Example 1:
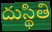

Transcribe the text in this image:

దుస్థితి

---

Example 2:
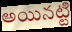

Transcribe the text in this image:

అయినట్టి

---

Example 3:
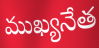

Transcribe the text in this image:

ముఖ్యనేత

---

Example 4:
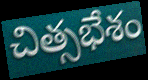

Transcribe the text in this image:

చిత్సభేశం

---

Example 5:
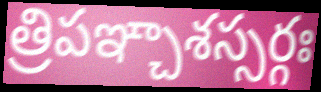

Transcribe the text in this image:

త్రిపఞ్చాశస్సర్గః